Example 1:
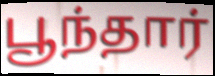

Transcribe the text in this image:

பூந்தார்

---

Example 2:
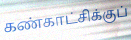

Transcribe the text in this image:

கண்காட்சிக்குப்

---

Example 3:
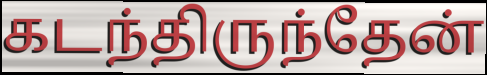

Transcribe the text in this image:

கடந்திருந்தேன்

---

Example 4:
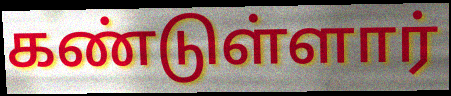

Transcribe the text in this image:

கண்டுள்ளார்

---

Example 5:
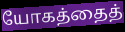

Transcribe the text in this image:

யோகத்தைத்